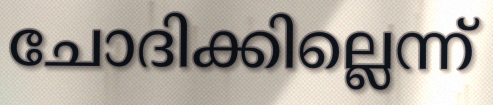
ചോദിക്കില്ലെന്ന്